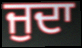
ਜੁਦਾ